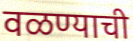
वळण्याची